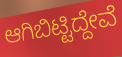
ಆಗಿಬಿಟ್ಟಿದ್ದೇವೆ